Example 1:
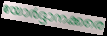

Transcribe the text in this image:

യോർദ്ദാനക്കരെ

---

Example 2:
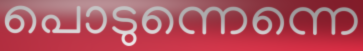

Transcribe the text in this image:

പൊടുന്നെന്നെ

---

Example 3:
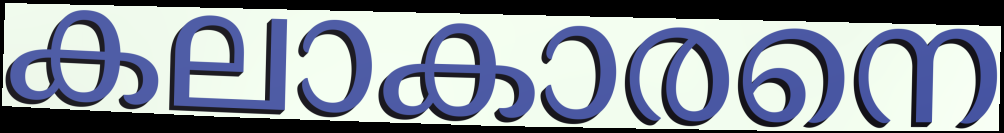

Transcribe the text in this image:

കലാകാരനെ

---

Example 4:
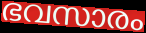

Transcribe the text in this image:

ഭവസാരം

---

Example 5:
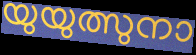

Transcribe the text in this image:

യുയുത്സുനാ